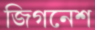
জিগনেশ